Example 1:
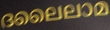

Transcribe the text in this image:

ദലൈലാമ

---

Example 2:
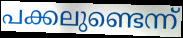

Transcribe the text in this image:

പക്കലുണ്ടെന്ന്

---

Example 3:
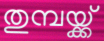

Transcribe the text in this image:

തുമ്പയ്ക്ക്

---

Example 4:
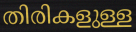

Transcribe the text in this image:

തിരികളുള്ള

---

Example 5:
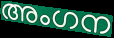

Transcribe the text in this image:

അംഗന